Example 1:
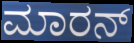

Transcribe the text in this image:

ಮಾರನ್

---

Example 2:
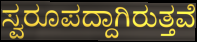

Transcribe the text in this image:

ಸ್ವರೂಪದ್ದಾಗಿರುತ್ತವೆ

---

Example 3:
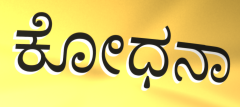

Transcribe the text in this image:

ಕೋಧನಾ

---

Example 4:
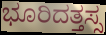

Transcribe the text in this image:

ಭೂರಿದತ್ತಸ್ಸ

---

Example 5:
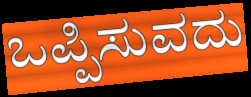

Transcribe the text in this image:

ಒಪ್ಪಿಸುವದು